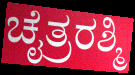
ಚೈತ್ರರಶ್ಮಿ